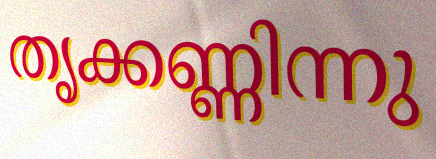
തൃക്കണ്ണിന്നു